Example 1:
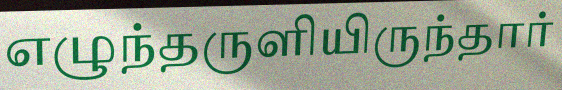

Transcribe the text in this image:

எழுந்தருளியிருந்தார்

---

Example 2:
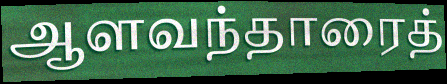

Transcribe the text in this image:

ஆளவந்தாரைத்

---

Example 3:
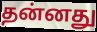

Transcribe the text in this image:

தன்னது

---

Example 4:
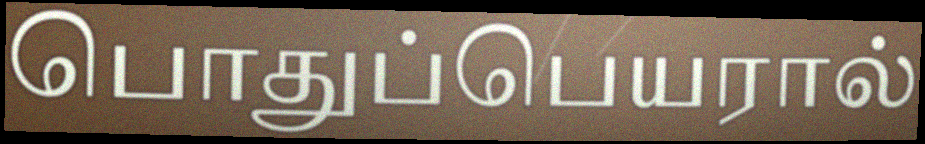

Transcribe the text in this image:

பொதுப்பெயரால்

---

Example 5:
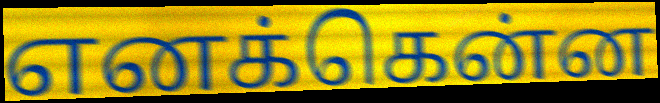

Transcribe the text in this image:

எனக்கென்ன